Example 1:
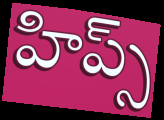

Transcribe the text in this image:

హిప్స్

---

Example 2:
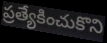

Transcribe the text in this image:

ప్రత్యేకించుకొని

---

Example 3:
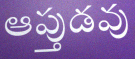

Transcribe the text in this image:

ఆప్తుడవు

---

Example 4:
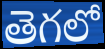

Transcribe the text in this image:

తెగలో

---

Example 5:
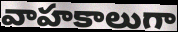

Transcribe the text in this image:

వాహకాలుగా